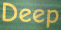
Deep